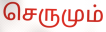
செருமும்